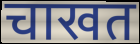
चाखत